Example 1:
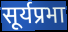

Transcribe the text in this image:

सूर्यप्रभा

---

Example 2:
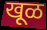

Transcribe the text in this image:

खूळ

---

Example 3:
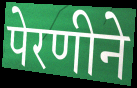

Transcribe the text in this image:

पेरणीने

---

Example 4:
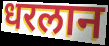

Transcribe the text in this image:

धरलान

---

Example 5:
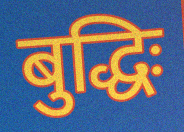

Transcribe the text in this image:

बुद्धिः